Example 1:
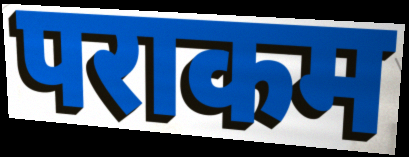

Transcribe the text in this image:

पराकम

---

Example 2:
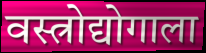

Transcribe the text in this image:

वस्त्रोद्योगाला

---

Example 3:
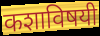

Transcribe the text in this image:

कशाविषयी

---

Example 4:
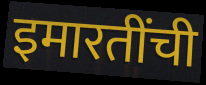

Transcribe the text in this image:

इमारतींची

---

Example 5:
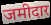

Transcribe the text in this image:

जमीदार